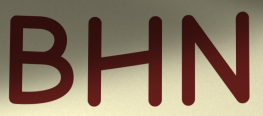
BHN